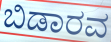
ಬಿಡಾರವ